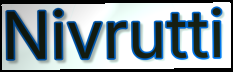
Nivrutti